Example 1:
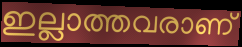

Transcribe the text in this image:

ഇല്ലാത്തവരാണ്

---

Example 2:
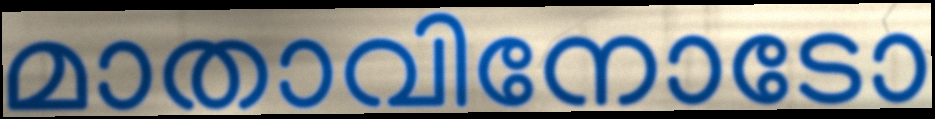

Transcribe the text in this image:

മാതാവിനോടോ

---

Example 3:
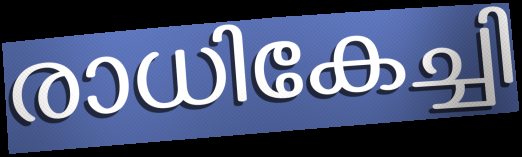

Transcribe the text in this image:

രാധികേച്ചി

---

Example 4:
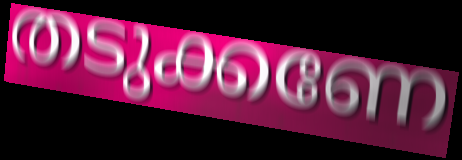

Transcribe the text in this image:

തടുക്കണേ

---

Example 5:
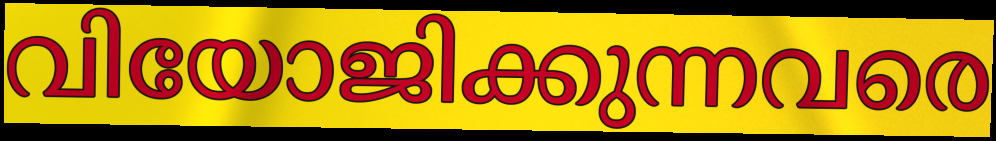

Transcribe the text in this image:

വിയോജിക്കുന്നവരെ